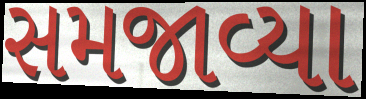
સમજાવ્યા